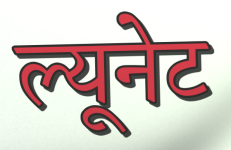
ल्यूनेट